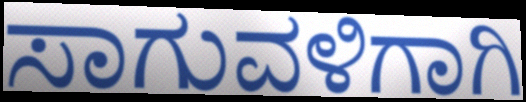
ಸಾಗುವಳಿಗಾಗಿ